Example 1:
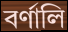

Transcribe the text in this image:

বর্ণালি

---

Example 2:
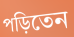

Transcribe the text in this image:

পড়িতেন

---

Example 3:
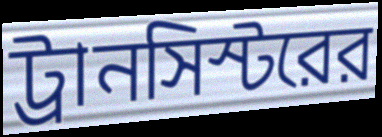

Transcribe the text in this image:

ট্রানসিস্টরের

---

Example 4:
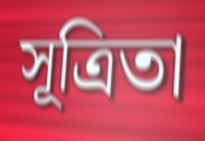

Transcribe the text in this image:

সূত্রিতা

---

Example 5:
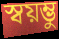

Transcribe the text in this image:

স্বয়ম্ভু